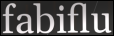
fabiflu